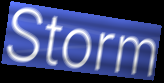
Storm